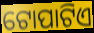
ଟୋପାଟିଏ